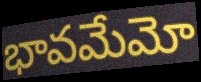
భావమేమో